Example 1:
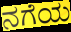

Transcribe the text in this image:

ನಗೆಯ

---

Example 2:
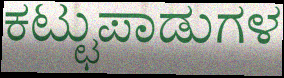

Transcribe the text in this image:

ಕಟ್ಟುಪಾಡುಗಳ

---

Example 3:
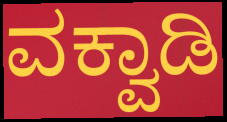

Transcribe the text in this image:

ವಕ್ವಾಡಿ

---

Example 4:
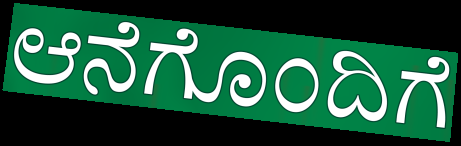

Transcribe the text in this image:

ಆನೆಗೊಂದಿಗೆ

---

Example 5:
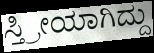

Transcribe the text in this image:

ಸ್ತ್ರೀಯಾಗಿದ್ದು